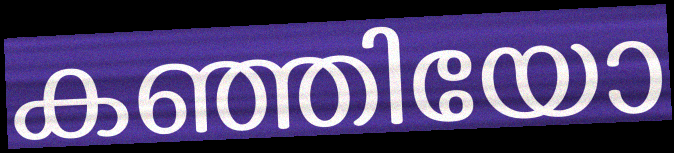
കഞ്ഞിയോ